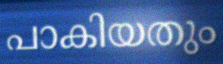
പാകിയതും